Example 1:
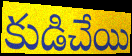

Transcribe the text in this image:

కుడిచేయి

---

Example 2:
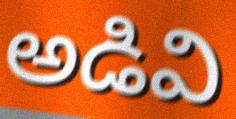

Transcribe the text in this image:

అడివి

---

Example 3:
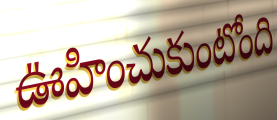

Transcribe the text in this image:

ఊహించుకుంటోంది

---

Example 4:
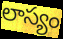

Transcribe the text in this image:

లాస్యం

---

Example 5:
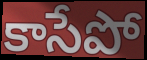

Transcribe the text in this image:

కాసేపో